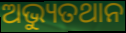
ଅଭ୍ୟୁତଥାନ